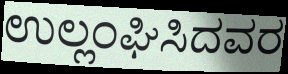
ಉಲ್ಲಂಘಿಸಿದವರ